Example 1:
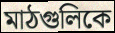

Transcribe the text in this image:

মাঠগুলিকে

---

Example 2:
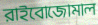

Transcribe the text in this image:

রাইবোজোমাল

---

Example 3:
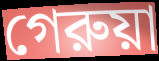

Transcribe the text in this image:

গেরুয়া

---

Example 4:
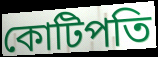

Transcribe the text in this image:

কোটিপতি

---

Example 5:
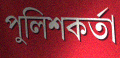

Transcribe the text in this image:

পুলিশকর্তা